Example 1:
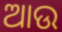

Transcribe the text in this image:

ଆଉ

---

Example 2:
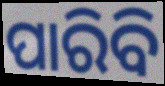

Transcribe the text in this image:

ପାରିବି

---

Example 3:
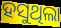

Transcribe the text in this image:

ହସୁଥିଲା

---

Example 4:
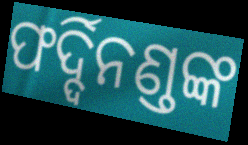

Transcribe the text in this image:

ଫର୍ଦ୍ଦିନଣ୍ଡଙ୍କ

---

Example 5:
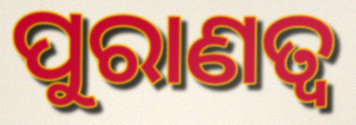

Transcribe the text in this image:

ପୁରାଣତ୍ୱ